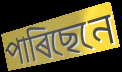
পাৰিছেনে